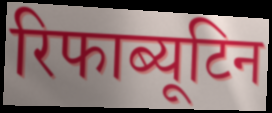
रिफाब्यूटिन